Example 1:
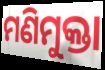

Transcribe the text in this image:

ମଣିମୁକ୍ତା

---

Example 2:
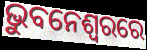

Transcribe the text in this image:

ଭୁବନେଶ୍ଵରରେ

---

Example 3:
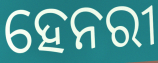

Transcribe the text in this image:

ହେନରୀ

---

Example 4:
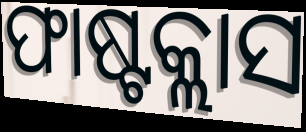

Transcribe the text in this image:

ଫାଷ୍ଟକ୍ଲାସ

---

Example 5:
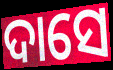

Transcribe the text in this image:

ଦାସେ